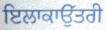
ਇਲਾਕਾਉੱਤਰੀ